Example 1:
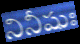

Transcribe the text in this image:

నినీషుః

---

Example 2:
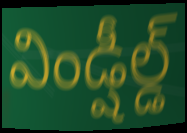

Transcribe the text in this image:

విండ్షీల్డ్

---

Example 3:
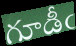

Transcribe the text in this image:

గూడీఁ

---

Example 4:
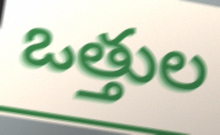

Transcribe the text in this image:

ఒత్తుల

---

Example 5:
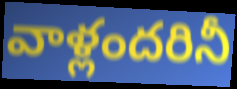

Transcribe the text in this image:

వాళ్లందరినీ